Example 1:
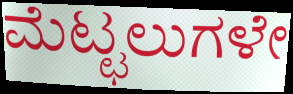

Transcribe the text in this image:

ಮೆಟ್ಟಲುಗಳೇ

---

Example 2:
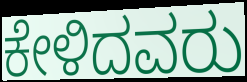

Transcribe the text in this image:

ಕೇಳಿದವರು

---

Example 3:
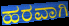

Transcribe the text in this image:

ಹರವಾಗಿ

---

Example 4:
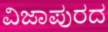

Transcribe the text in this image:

ವಿಜಾಪುರದ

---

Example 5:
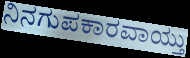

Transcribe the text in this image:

ನಿನಗುಪಕಾರವಾಯ್ತು